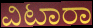
ವಿಟಾರಾ